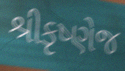
શ્રીકૃષ્ણેજ